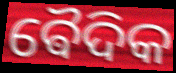
ଵୈଦିକ